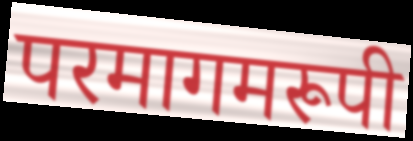
परमागमरूपी